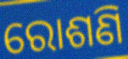
ରୋଶଣି